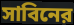
সাবিনের